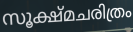
സൂക്ഷ്മചരിത്രം